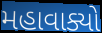
મહાવાક્યો